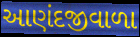
આણંદજીવાળા